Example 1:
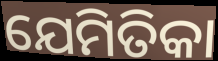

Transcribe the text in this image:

ଯେମିତିକା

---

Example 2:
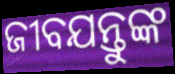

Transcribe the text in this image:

ଜୀବଯନ୍ତୁଙ୍କ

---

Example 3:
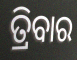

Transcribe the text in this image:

ତ୍ରିବାର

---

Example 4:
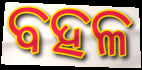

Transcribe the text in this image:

ବହଳ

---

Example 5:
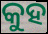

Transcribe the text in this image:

କୁହ